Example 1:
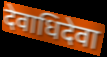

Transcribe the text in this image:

देवाधिदेवा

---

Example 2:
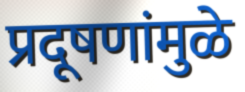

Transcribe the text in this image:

प्रदूषणांमुळे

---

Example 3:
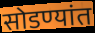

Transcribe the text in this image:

सोडण्यांत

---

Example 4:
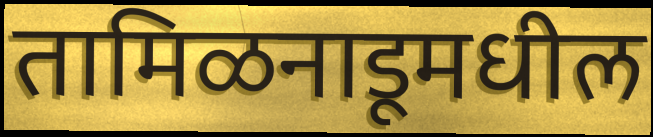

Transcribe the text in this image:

तामिळनाडूमधील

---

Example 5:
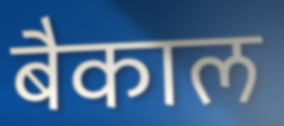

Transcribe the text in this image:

बैकाल